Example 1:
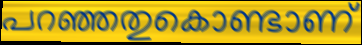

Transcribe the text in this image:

പറഞ്ഞതുകൊണ്ടാണ്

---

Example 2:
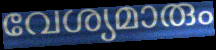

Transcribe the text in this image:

വേശ്യമാരും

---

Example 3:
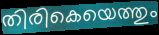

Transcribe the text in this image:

തിരികെയെത്തും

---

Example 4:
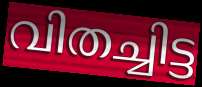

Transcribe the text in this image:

വിതച്ചിട്ട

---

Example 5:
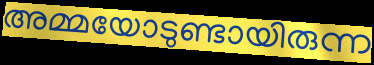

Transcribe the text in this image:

അമ്മയോടുണ്ടായിരുന്ന